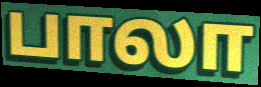
பாலா